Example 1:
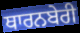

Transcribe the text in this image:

ਥਾਰਨਬੇਰੀ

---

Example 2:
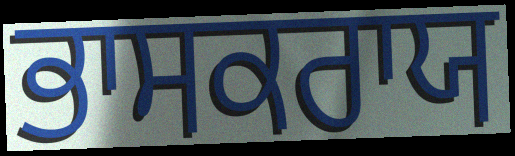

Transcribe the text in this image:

ਭਾਸਕਰਾਯ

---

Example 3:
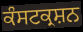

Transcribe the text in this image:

ਕੰਸਟਕ੍ਰਸ਼ਨ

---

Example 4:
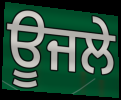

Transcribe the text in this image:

ਊਜਲੇ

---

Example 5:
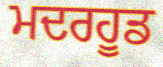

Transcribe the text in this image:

ਮਦਰਹੂਡ